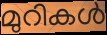
മുറികൾ